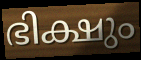
ഭിക്ഷും